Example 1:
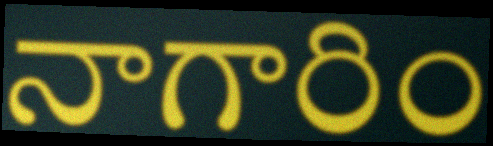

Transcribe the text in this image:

నాగారిం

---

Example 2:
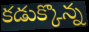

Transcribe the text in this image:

కడుక్కొన్న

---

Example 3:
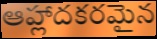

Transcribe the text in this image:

ఆహ్లాదకరమైన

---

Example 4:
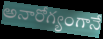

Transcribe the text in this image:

అనారోగ్యంగానే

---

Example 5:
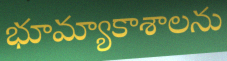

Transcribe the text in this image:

భూమ్యాకాశాలను